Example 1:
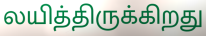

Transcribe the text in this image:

லயித்திருக்கிறது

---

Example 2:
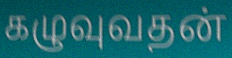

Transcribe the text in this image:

கழுவுவதன்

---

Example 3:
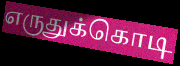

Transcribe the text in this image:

எருதுக்கொடி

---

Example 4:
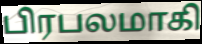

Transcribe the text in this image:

பிரபலமாகி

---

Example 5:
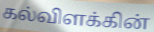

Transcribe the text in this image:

கல்விளக்கின்